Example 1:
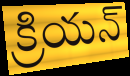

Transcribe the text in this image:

క్రియన్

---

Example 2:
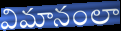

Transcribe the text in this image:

విమానంలా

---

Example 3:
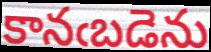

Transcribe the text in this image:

కానఁబడెను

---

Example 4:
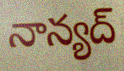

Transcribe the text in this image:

నాన్యద్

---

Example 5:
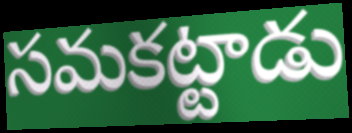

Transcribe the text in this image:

సమకట్టాడు